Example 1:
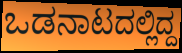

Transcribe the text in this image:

ಒಡನಾಟದಲ್ಲಿದ್ದ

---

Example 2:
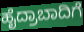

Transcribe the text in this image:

ಹೈದ್ರಾಬಾದಿಗೆ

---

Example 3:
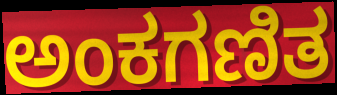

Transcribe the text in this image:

ಅಂಕಗಣಿತ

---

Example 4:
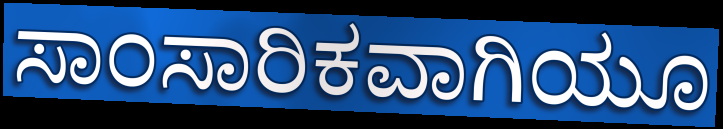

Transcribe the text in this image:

ಸಾಂಸಾರಿಕವಾಗಿಯೂ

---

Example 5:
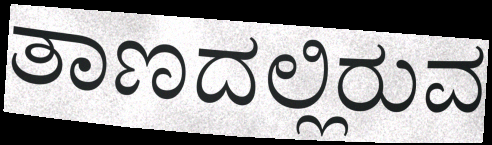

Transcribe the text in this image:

ತಾಣದಲ್ಲಿರುವ